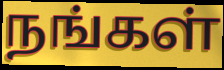
நங்கள்